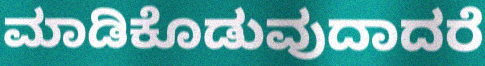
ಮಾಡಿಕೊಡುವುದಾದರೆ